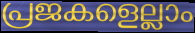
പ്രജകളെല്ലാം